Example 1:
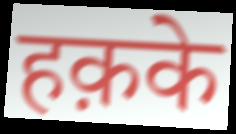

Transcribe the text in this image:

हक़के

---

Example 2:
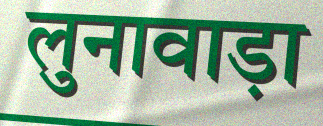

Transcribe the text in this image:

लुनावाड़ा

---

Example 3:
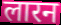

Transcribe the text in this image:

लारन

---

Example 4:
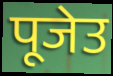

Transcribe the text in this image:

पूजेउ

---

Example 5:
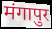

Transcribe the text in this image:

मंगापुर